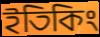
ইতিকিং